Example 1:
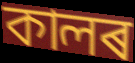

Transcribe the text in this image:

কালৰ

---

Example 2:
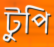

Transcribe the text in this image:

টুপি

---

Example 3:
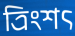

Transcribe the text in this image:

ত্ৰিংশৎ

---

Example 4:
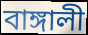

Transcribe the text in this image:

বাঙ্গালী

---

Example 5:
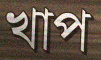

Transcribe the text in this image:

খাপ